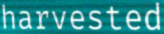
harvested